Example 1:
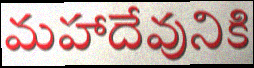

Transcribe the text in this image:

మహాదేవునికి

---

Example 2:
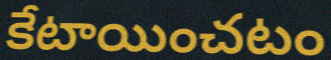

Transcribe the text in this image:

కేటాయించటం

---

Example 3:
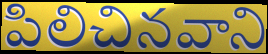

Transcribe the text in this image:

పిలిచినవాని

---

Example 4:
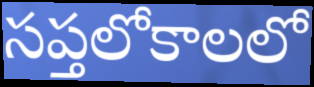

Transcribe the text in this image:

సప్తలోకాలలో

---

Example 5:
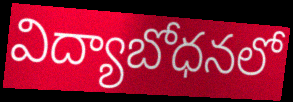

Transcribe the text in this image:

విద్యాబోధనలో